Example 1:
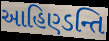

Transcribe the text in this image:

આહિણ્ડન્તિ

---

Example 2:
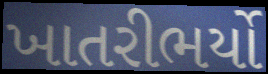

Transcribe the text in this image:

ખાતરીભર્યો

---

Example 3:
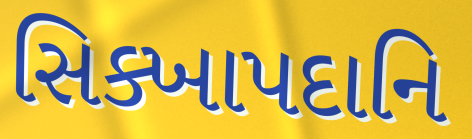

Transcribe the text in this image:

સિક્ખાપદાનિ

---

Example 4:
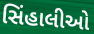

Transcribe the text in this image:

સિંહાલીઓ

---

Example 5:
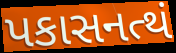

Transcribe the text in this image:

પકાસનત્થં